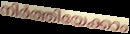
നിർത്തിയേക്കാം